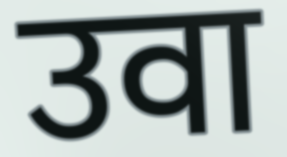
उवा